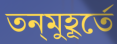
তন্‌মুহূর্তে